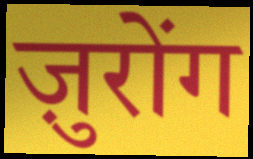
ज़ुरोंग